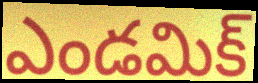
ఎండమిక్